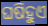
ଘଷିହୁଏ